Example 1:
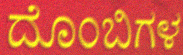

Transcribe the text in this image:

ದೊಂಬಿಗಳ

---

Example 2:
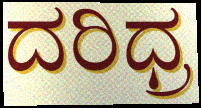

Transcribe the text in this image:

ದರಿಧ್ರ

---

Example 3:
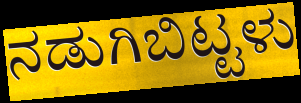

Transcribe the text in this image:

ನಡುಗಿಬಿಟ್ಟಳು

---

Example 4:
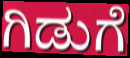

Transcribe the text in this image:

ಗಿಡುಗೆ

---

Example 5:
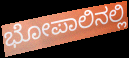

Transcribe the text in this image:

ಭೋಪಾಲಿನಲ್ಲಿ